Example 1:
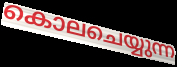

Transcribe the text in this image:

കൊലചെയ്യുന്ന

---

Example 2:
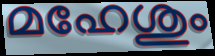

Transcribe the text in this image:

മഹേശും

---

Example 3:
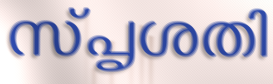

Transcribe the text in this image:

സ്പൃശതി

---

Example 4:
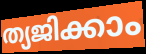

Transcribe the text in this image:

ത്യജിക്കാം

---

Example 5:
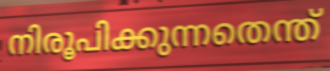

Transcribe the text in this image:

നിരൂപിക്കുന്നതെന്ത്